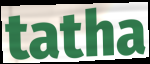
tatha